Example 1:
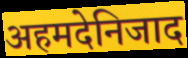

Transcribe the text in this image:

अहमदेनिजाद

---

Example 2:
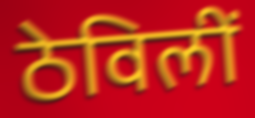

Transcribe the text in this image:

ठेविलीं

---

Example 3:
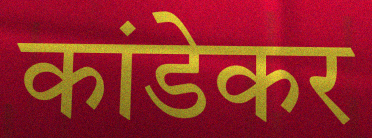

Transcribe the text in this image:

कांडेकर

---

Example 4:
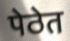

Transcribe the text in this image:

पेठेत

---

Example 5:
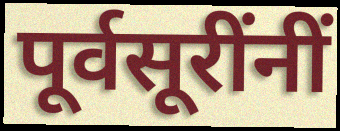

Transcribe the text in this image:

पूर्वसूरींनीं